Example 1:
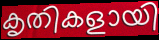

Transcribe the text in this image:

കൃതികളായി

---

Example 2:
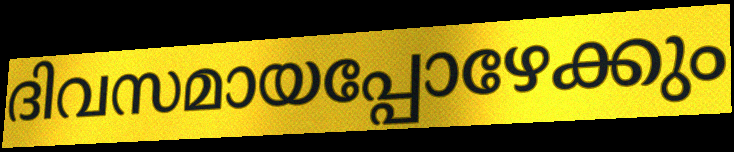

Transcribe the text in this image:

ദിവസമായപ്പോഴേക്കും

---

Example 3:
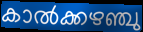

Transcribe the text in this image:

കാൽക്കഴഞ്ചു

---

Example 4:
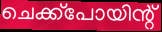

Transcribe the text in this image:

ചെക്ക്പോയിന്റ്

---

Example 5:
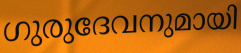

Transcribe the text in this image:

ഗുരുദേവനുമായി